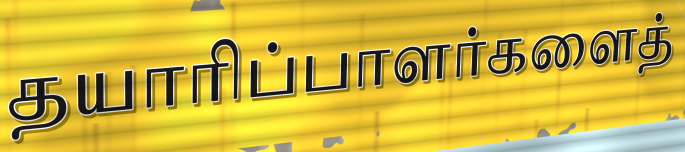
தயாரிப்பாளர்களைத்